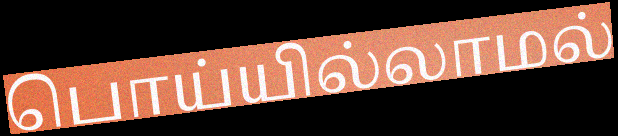
பொய்யில்லாமல்